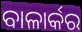
ବାଳାର୍କର